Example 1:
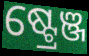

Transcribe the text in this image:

ଷ୍ଟ୍ରେଞ୍ଜ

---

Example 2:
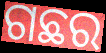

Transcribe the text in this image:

ଗଛର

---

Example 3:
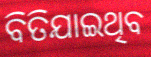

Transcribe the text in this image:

ବିତିଯାଇଥିବ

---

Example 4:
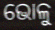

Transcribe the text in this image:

ଭୋଳୁ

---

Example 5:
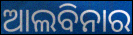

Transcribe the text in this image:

ଆଲବିନାର